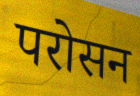
परोसन